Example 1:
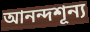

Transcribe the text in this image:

আনন্দশূন্য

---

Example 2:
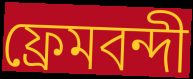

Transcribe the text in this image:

ফ্রেমবন্দী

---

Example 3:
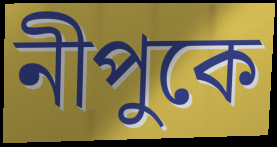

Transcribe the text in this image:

নীপুকে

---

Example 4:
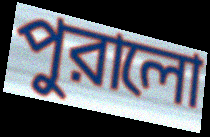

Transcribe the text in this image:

পুরালো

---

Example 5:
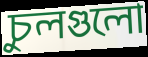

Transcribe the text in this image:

চুলগুলো